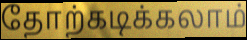
தோற்கடிக்கலாம்